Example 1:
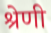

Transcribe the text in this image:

श्रेणी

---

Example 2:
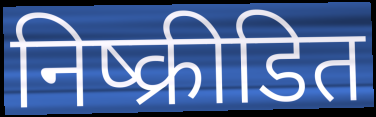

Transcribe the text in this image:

निष्क्रीडित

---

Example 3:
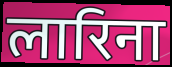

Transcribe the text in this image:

लारिना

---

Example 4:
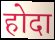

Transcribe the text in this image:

होदा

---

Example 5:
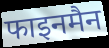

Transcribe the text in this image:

फाइनमैन